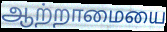
ஆற்றாமையை